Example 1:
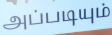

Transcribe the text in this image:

அப்படியும்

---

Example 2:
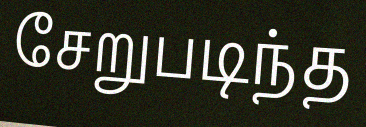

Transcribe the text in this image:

சேறுபடிந்த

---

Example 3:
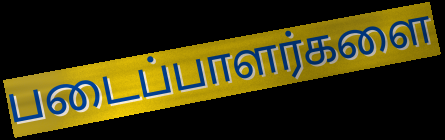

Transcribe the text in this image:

படைப்பாளர்களை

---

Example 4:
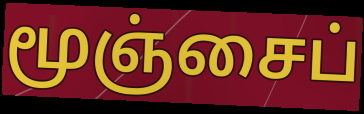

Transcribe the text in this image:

மூஞ்சைப்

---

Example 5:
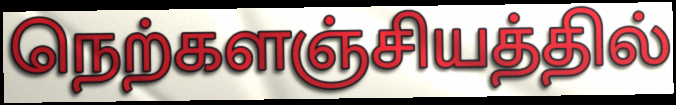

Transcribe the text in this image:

நெற்களஞ்சியத்தில்